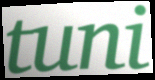
tuni